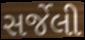
સર્જેલી